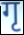
गृ